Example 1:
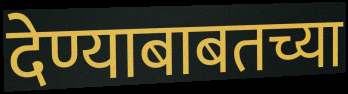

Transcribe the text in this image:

देण्याबाबतच्या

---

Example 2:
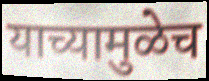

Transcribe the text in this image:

याच्यामुळेच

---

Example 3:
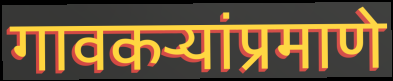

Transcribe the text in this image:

गावकऱ्यांप्रमाणे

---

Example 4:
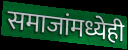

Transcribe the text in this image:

समाजांमध्येही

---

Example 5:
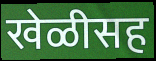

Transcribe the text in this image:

खेळीसह